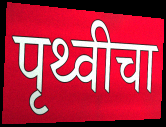
पृथ्वीचा